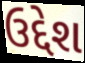
ઉદ્દેશ